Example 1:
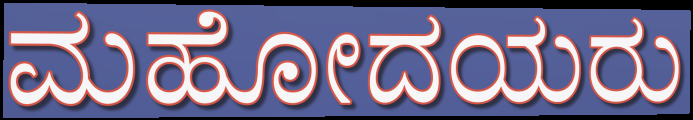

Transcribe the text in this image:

ಮಹೋದಯರು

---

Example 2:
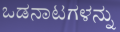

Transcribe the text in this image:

ಒಡನಾಟಗಳನ್ನು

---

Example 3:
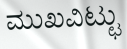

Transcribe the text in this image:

ಮುಖವಿಟ್ಟು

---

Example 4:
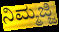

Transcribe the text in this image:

ನಿಮ್ಮಜ್ಜಿ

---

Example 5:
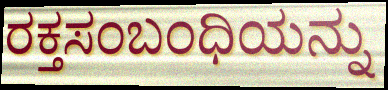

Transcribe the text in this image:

ರಕ್ತಸಂಬಂಧಿಯನ್ನು